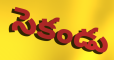
సెకండు